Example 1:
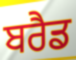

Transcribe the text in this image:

ਬਰੈਡ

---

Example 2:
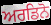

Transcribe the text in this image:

ਅਰਡਿਨੋ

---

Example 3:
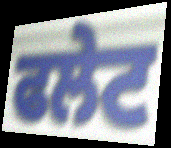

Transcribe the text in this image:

ਫਲੇਟ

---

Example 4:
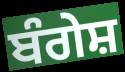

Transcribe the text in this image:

ਬੰਗੇਸ਼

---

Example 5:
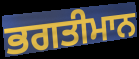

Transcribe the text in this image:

ਭਗਤੀਮਾਨ